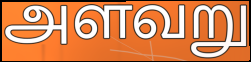
அளவறு